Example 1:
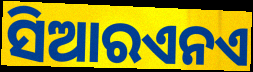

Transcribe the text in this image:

ସିଆରଏନଏ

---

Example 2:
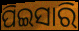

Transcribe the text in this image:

ପିଇସାରି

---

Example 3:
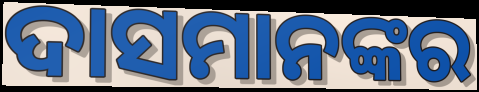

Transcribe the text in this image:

ଦାସମାନଙ୍କର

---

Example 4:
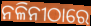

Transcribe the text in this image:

ନଳିନୀଠାରେ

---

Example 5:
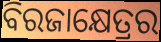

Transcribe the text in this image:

ବିରଜାକ୍ଷେତ୍ରର